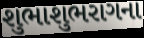
શુભાશુભરાગના